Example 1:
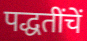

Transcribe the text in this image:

पद्धतींचें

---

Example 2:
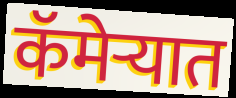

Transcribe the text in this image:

कॅमेर्‍यात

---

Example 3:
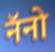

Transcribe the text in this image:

नॅनो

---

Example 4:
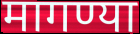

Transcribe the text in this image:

मागण्या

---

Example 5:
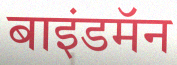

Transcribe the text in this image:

बाइंडमॅन